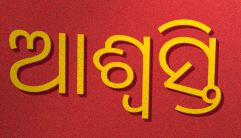
ଆଶ୍ଵସ୍ତି